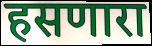
हसणारा